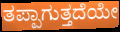
ತಪ್ಪಾಗುತ್ತದೆಯೇ